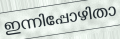
ഇന്നിപ്പോഴിതാ